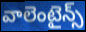
వాలెంటైన్స్